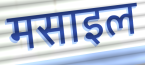
मसाइल